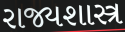
રાજ્યશાસ્ત્ર